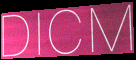
DICM